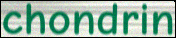
chondrin